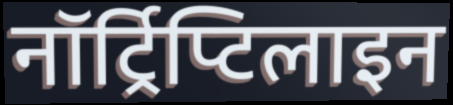
नॉर्ट्रिप्टिलाइन